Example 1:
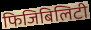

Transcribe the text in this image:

फिजिबिलिटी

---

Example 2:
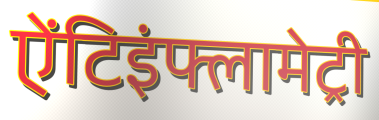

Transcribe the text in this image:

ऐंटिइंफ्लामेट्री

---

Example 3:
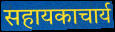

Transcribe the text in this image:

सहायकाचार्य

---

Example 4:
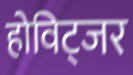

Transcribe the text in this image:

होविट्जर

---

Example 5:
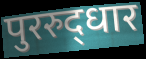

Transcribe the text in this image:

पुररुद्धार